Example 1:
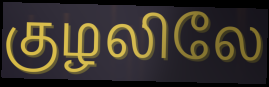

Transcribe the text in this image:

குழலிலே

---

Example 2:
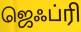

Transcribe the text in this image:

ஜெஃப்ரி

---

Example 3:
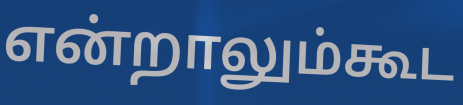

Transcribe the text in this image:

என்றாலும்கூட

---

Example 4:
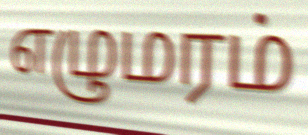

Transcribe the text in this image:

எழுமரம்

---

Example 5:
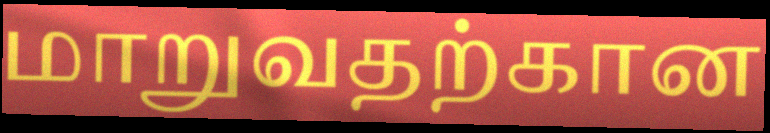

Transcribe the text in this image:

மாறுவதற்கான